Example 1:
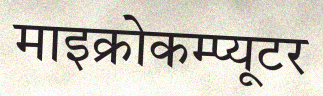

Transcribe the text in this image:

माइक्रोकम्प्यूटर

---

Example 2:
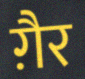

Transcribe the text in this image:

ग़ैर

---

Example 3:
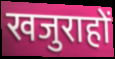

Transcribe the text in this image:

खजुराहों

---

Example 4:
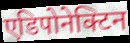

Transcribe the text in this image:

एडिपोनेक्टिन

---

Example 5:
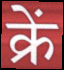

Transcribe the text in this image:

क्रें